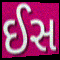
ઈસ